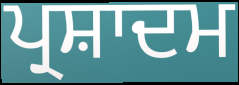
ਪ੍ਰਸ਼ਾਦਮ